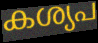
കശ്യപ